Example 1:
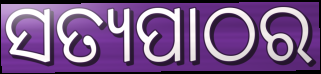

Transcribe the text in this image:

ସତ୍ୟପାଠର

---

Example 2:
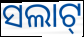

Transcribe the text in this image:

ସଲାଟ୍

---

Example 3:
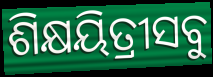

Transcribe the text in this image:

ଶିକ୍ଷୟିତ୍ରୀସବୁ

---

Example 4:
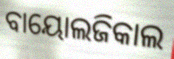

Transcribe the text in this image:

ବାୟୋଲଜିକାଲ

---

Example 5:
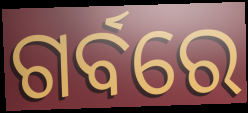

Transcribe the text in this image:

ଗର୍ବରେ